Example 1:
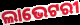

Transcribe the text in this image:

ଲାଭେଟରୀ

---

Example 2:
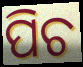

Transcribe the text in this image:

ପିଚ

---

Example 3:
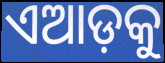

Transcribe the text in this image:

ଏଆଡ଼କୁ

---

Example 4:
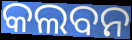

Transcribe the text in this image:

କଲବନ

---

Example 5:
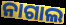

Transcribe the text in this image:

ନାଗାଲ